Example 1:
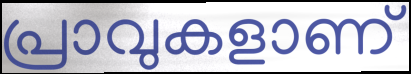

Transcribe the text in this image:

പ്രാവുകളാണ്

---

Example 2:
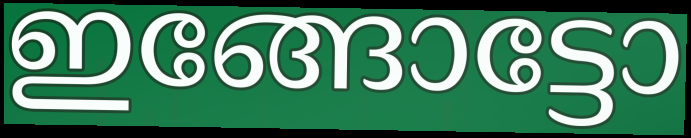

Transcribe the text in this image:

ഇങ്ങോട്ടോ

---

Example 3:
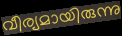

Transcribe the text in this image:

വീര്യമായിരുന്നു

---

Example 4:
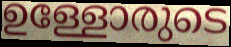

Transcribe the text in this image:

ഉള്ളോരുടെ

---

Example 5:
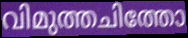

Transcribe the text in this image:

വിമുത്തചിത്തോ